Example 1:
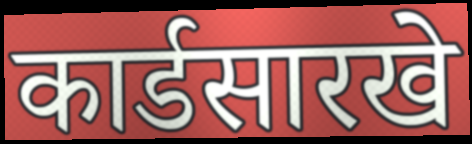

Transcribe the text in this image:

कार्डसारखे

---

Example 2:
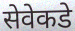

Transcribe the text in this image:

सेवेकडे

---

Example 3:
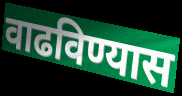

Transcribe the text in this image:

वाढविण्यास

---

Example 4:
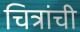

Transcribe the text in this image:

चित्रांची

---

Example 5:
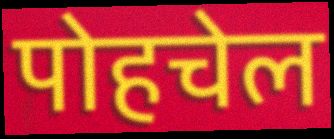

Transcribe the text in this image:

पोहचेल